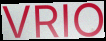
VRIO